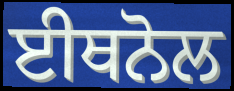
ਈਥਨੋਲ